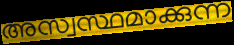
അസ്വസ്ഥമാക്കുന്ന